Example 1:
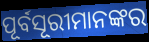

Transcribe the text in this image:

ପୂର୍ବସୂରୀମାନଙ୍କର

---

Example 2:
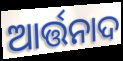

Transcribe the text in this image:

ଆର୍ତ୍ତନାଦ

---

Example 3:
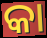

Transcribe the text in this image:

କା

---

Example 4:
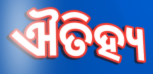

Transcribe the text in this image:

ଐତିହ୍ୟ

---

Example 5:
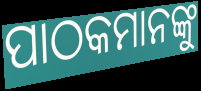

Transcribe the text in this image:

ପାଠକମାନଙ୍କୁ